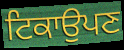
ਟਿਕਾਉਪਣ